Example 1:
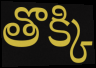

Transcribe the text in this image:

తొక్కి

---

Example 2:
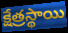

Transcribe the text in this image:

క్షేత్రస్థాయి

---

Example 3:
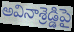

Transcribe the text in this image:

అవినాశ్రెడ్డిపై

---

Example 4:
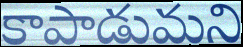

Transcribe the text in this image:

కాపాడుమని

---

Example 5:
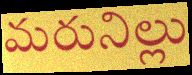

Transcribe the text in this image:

మరునిల్లు